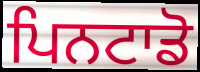
ਪਿਨਟਾਡੋ